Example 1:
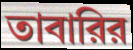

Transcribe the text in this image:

তাবারির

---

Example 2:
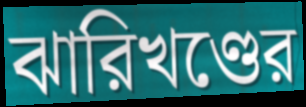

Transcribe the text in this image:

ঝারিখণ্ডের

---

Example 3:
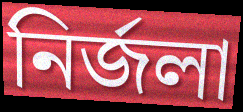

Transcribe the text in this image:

নির্জলা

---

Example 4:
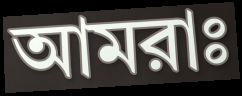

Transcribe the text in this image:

আমরাঃ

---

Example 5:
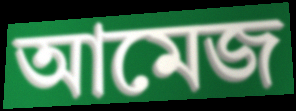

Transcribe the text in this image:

আমেজ